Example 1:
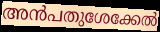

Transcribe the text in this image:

അൻപതുശേക്കേൽ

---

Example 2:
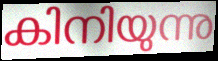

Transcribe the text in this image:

കിനിയുന്നു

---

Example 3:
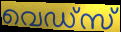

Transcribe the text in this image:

വെഡ്സ്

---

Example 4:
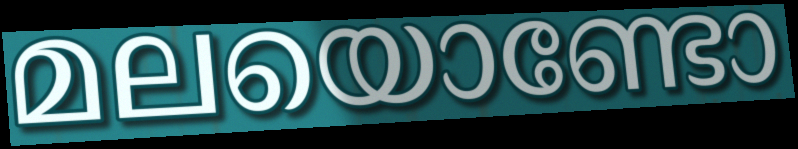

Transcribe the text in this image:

മലയൊണ്ടോ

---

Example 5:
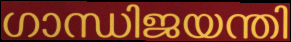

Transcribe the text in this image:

ഗാന്ധിജയന്തി